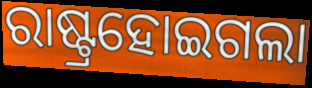
ରାଷ୍ଟ୍ରହୋଇଗଲା